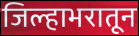
जिल्हाभरातून